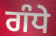
ਗੰਧੇ